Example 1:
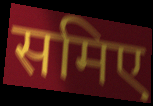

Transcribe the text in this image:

समिए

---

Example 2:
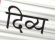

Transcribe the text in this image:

दिव्य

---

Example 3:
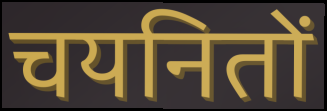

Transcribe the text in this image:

चयनितों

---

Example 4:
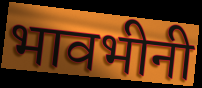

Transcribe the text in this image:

भावभीनी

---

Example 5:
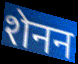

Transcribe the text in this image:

शेनन